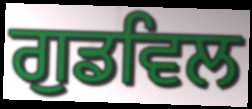
ਗੁਡਵਿਲ